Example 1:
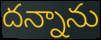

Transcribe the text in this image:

దన్నాను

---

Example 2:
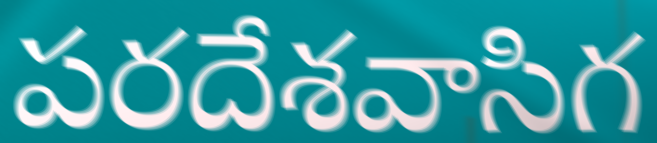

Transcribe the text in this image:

పరదేశవాసిగ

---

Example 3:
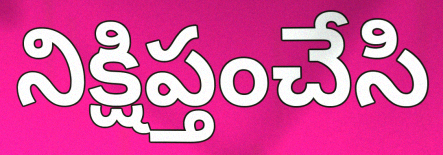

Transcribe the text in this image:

నిక్షిప్తంచేసి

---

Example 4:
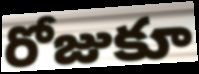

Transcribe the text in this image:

రోజుకూ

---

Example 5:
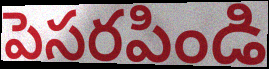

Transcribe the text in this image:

పెసరపిండి